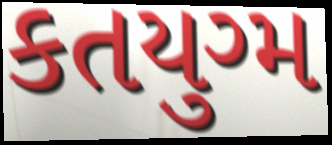
કતયુગ્મ